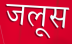
जलूस